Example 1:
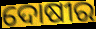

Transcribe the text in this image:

ଦୋଷୀର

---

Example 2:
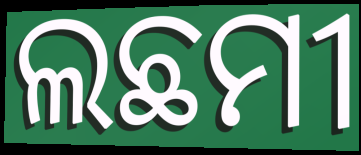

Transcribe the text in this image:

ଲଛମୀ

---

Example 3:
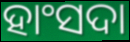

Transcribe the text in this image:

ହାଂସଦା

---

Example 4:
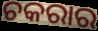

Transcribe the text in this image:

ଚକରାର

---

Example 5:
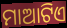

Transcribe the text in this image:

ମାଆଟିଏ